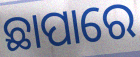
ଛାପାରେ